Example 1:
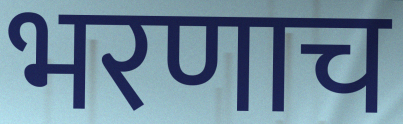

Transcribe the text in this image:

भरणाच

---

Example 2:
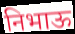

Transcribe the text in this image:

निभाऊ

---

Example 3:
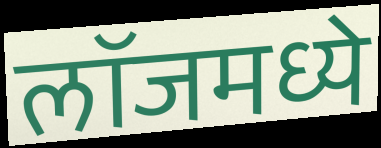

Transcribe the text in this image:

लॉजमध्ये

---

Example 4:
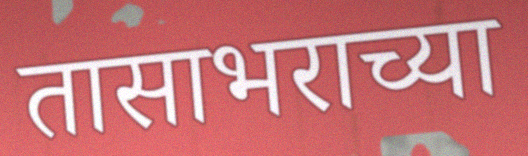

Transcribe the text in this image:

तासाभराच्या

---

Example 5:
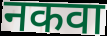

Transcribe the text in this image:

नकवा